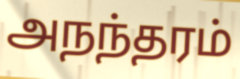
அநந்தரம்